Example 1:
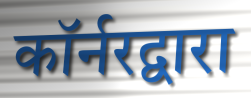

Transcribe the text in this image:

कॉर्नरद्वारा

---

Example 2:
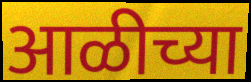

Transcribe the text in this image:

आळीच्या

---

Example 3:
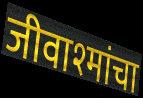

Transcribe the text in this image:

जीवाश्मांचा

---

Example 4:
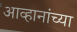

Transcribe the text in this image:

आव्हानांच्या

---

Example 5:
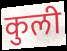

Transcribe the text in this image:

कुली